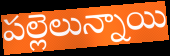
పల్లెలున్నాయి